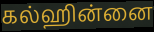
கல்ஹின்னை